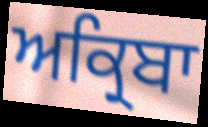
ਅਕ੍ਰਿਬਾ